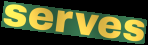
serves